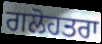
ਗਲੋਹਤਰਾ